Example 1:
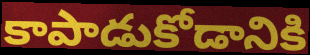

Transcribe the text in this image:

కాపాడుకోడానికి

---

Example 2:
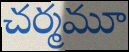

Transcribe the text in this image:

చర్మమూ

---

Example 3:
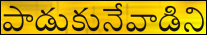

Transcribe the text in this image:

పాడుకునేవాడిని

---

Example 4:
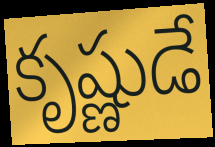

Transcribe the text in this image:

కృష్ణుడే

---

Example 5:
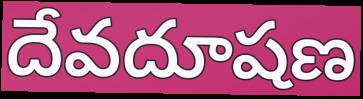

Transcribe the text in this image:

దేవదూషణ